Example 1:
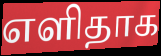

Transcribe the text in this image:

எளிதாக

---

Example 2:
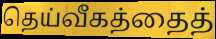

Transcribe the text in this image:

தெய்வீகத்தைத்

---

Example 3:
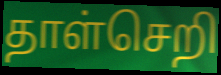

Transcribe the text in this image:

தாள்செறி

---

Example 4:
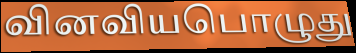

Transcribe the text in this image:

வினவியபொழுது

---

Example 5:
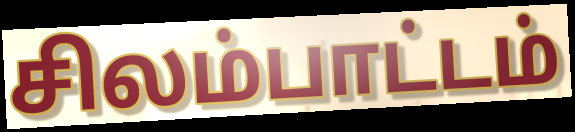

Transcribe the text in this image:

சிலம்பாட்டம்